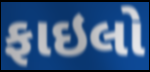
ફાઇલો